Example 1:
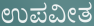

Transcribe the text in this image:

ಉಪವೀತ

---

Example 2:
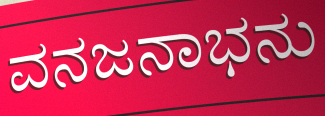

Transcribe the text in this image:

ವನಜನಾಭನು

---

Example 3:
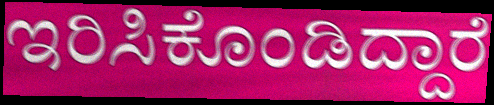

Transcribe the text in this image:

ಇರಿಸಿಕೊಂಡಿದ್ದಾರೆ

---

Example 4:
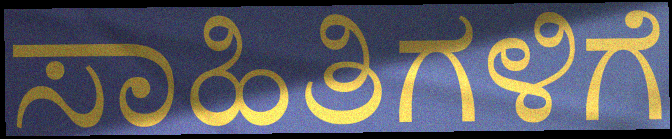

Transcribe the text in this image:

ಸಾಹಿತಿಗಳಿಗೆ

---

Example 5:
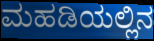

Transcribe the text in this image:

ಮಹಡಿಯಲ್ಲಿನ